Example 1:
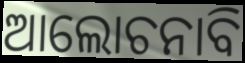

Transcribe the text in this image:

ଆଲୋଚନାବି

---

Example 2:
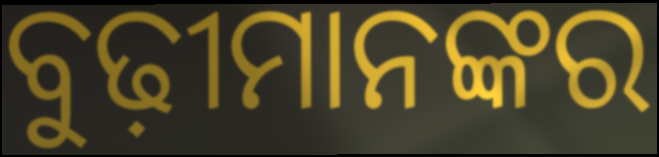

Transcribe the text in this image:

ବୁଢ଼ୀମାନଙ୍କର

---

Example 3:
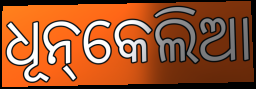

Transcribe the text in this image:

ଧୂନ୍‌କେଲିଆ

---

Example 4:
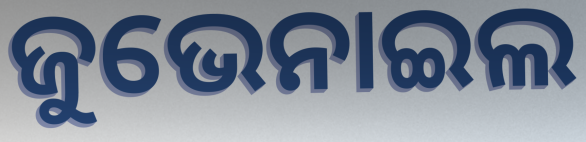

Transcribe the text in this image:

ଜୁଭେନାଇଲ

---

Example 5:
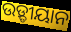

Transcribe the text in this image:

ଉଡ଼୍ଡୀୟାନ